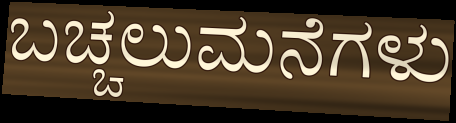
ಬಚ್ಚಲುಮನೆಗಳು